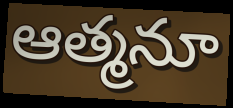
ఆత్మనూ